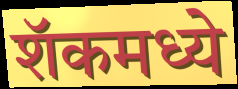
शॅकमध्ये